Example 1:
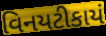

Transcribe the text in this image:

વિનયટીકાયં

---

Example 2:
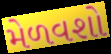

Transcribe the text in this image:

મેળવશો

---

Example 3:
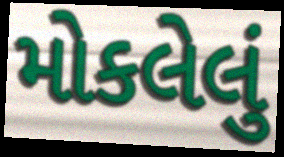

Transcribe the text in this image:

મોકલેલું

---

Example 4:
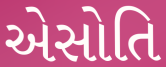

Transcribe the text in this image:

એસોતિ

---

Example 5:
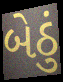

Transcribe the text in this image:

બેઠું